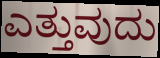
ಎತ್ತುವುದು